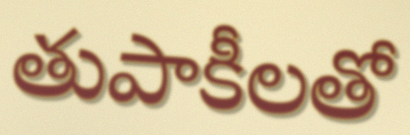
తుపాకీలతో